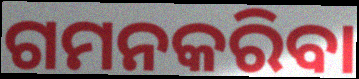
ଗମନକରିବା